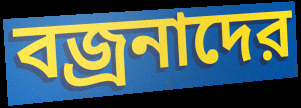
বজ্রনাদের